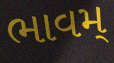
ભાવમ્